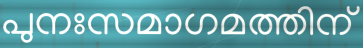
പുനഃസമാഗമത്തിന്